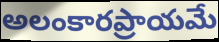
అలంకారప్రాయమే